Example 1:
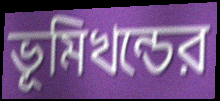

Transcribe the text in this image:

ভূমিখন্ডের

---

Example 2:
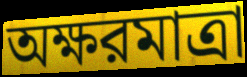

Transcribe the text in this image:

অক্ষরমাত্রা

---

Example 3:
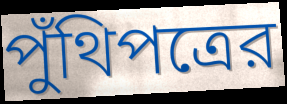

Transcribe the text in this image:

পুঁথিপত্রের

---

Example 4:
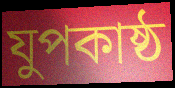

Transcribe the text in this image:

যুপকাষ্ঠ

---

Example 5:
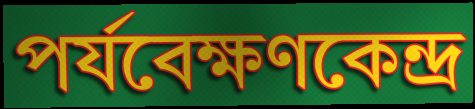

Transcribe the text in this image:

পর্যবেক্ষণকেন্দ্র